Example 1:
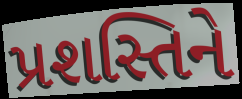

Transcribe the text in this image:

પ્રશસ્તિને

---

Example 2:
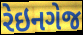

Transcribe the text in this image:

રેઇનગેજ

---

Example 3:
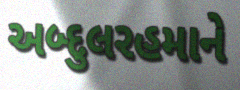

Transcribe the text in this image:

અબ્દુલરહમાને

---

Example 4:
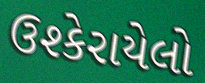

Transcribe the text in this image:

ઉશ્કેરાયેલો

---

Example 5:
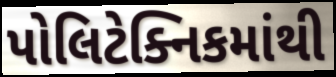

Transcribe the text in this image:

પોલિટેક્નિકમાંથી